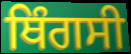
ਥਿੰਗਸੀ